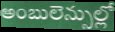
అంబులెన్సుల్లో